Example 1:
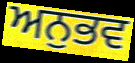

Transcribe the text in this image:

ਅਨੁਭਵ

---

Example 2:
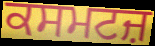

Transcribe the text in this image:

ਕਸਮਟਜ਼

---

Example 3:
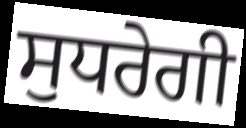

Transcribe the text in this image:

ਸੁਧਰੇਗੀ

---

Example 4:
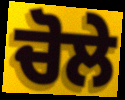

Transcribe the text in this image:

ਚੋਲੇ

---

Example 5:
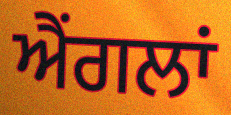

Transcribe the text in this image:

ਐਂਗਲਾਂ